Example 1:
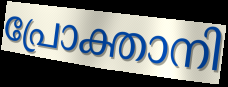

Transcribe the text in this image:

പ്രോക്താനി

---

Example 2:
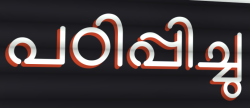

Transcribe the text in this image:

പഠിപ്പിച്ചു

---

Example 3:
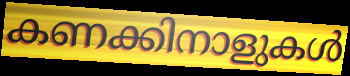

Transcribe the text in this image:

കണക്കിനാളുകൾ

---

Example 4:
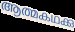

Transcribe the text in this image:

ആത്മകഥക്കു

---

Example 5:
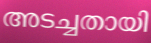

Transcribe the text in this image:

അടച്ചതായി